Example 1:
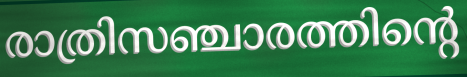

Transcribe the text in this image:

രാത്രിസഞ്ചാരത്തിന്റെ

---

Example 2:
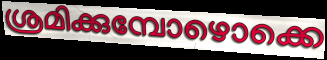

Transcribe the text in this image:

ശ്രമിക്കുമ്പോഴൊക്കെ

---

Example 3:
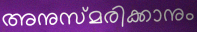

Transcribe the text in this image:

അനുസ്മരിക്കാനും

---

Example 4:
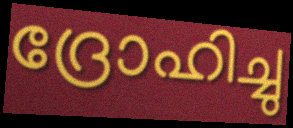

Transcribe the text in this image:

ദ്രോഹിച്ചു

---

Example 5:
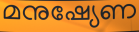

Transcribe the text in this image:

മനുഷ്യേണ